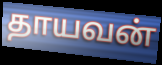
தாயவன்